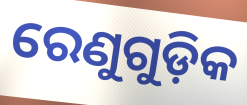
ରେଣୁଗୁଡ଼ିକ